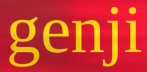
genji